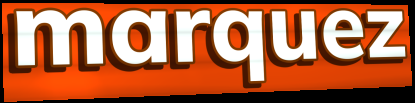
marquez